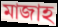
মাজাহ